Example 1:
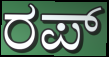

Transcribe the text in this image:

ರಪ್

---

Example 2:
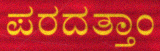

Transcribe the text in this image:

ಪರದತ್ತಾಂ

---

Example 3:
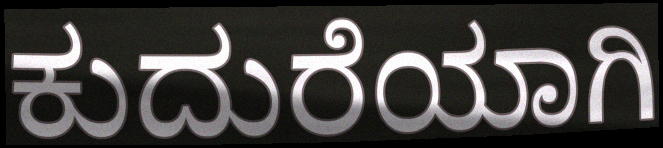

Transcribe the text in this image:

ಕುದುರೆಯಾಗಿ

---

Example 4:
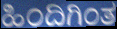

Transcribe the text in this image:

ಹಿಂದಿಗಿಂತ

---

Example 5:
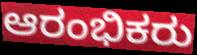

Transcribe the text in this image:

ಆರಂಭಿಕರು